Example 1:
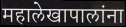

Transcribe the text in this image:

महालेखापालांना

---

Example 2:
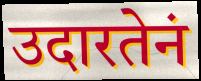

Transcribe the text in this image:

उदारतेनं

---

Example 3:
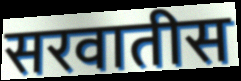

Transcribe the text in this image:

सरवातीस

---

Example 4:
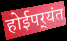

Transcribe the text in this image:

होईपर्यंत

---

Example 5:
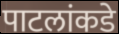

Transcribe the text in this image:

पाटलांकडे